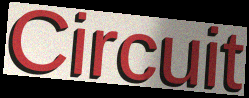
Circuit